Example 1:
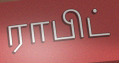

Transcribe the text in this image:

ராபிட்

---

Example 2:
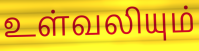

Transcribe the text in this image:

உள்வலியும்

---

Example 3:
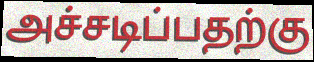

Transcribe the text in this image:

அச்சடிப்பதற்கு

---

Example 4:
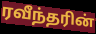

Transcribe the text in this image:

ரவீந்தரின்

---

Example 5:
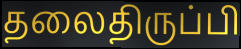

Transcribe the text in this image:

தலைதிருப்பி